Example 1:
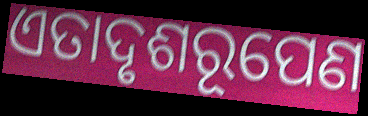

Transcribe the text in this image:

ଏତାଦୃଶରୂପେଣ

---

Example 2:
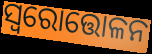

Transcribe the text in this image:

ସ୍ବରୋତ୍ତୋଳନ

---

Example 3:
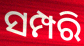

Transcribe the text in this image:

ସମ୍ପରି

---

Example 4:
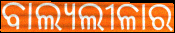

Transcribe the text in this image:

ବାଲ୍ୟଲୀଳାର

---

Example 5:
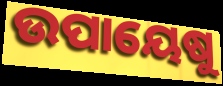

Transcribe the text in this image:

ଉପାୟେଷୁ